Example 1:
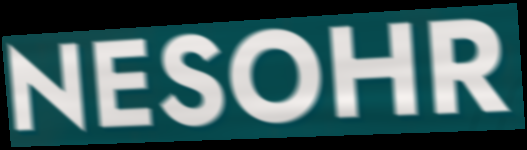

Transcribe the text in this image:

NESOHR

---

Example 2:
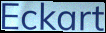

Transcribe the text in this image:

Eckart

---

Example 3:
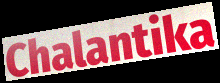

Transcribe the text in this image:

Chalantika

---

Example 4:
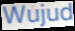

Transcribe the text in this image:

Wujud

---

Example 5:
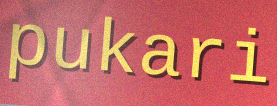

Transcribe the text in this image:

pukari